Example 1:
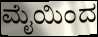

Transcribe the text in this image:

ಮೈಯಿಂದ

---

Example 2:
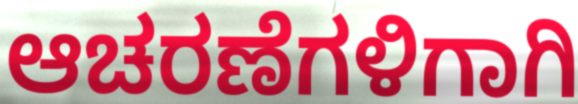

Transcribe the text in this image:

ಆಚರಣೆಗಳಿಗಾಗಿ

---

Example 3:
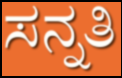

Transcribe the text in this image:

ಸನ್ನತಿ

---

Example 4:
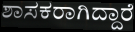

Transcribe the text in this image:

ಶಾಸಕರಾಗಿದ್ದಾರೆ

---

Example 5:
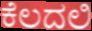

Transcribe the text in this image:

ಕೆಲದಲಿ